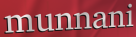
munnani